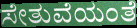
ಸೇತುವೆಯಂತೆ